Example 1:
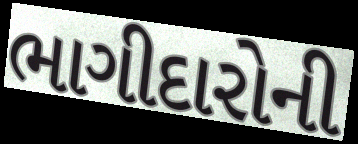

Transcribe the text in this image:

ભાગીદારોની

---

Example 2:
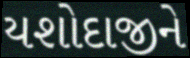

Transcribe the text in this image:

યશોદાજીને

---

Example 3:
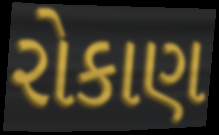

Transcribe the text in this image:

રોકાણ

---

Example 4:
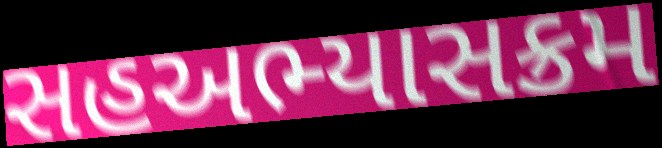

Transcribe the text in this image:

સહઅભ્યાસક્રમ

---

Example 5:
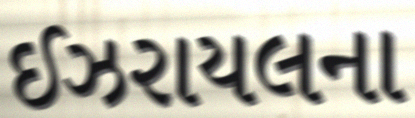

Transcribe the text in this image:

ઈઝરાયલના